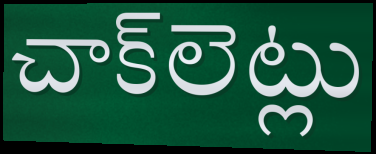
చాక్‌లెట్లు